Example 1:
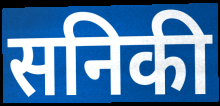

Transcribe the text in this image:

सनिकी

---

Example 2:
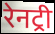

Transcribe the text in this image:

रेनट्री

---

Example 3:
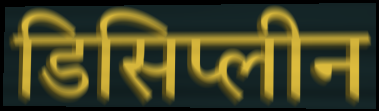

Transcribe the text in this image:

डिसिप्लीन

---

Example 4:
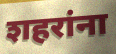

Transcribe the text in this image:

शहरांना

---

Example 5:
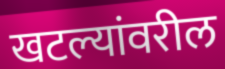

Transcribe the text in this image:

खटल्यांवरील